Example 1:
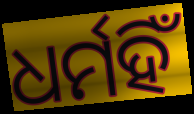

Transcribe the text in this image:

ଧର୍ମହିଁ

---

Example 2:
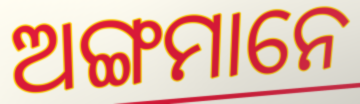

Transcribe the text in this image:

ଅଙ୍ଗମାନେ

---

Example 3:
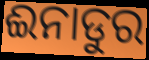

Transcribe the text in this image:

ଈନାଡୁର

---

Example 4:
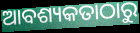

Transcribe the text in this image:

ଆବଶ୍ୟକତାଠାରୁ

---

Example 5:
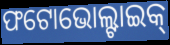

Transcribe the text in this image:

ଫଟୋଭୋଲ୍ଟାଇକ୍